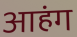
आहंग